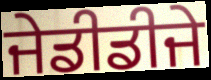
ਜੇਡੀਡੀਜੇ